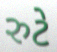
રુટે